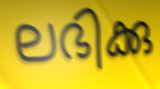
ലഭിക്കു